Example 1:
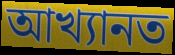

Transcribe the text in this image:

আখ্যানত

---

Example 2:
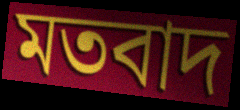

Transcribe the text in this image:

মতবাদ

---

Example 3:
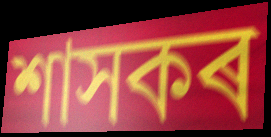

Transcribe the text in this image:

শাসকৰ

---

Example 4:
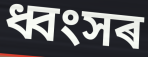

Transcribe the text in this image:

ধ্বংসৰ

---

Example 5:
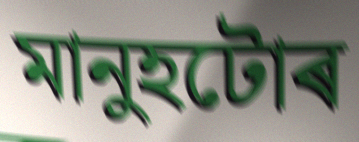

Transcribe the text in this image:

মানুহটোৰ